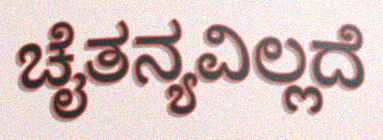
ಚೈತನ್ಯವಿಲ್ಲದೆ